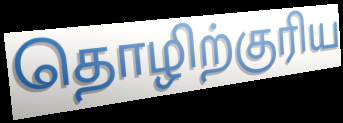
தொழிற்குரிய